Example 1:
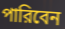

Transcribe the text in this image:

পারিবেন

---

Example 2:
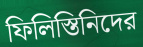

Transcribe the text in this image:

ফিলিস্তিনিদের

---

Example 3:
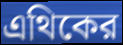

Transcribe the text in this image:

এথিকের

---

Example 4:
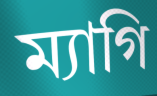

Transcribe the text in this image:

ম্যাগি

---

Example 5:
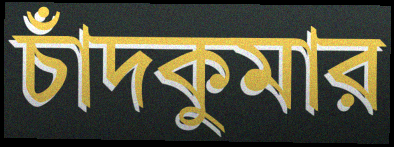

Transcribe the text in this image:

চাঁদকুমার